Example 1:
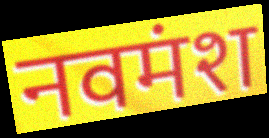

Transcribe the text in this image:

नवमंश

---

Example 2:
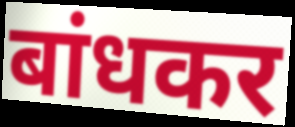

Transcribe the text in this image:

बांधकर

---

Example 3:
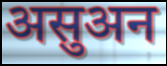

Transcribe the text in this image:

असुअन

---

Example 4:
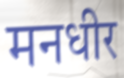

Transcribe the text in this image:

मनधीर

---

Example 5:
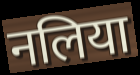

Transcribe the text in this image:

नलिया